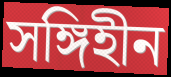
সঙ্গিহীন